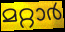
മറ്റാർ